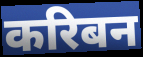
करिबन